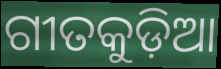
ଗୀତକୁଡ଼ିଆ